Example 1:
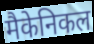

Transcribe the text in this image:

मैकेनिकल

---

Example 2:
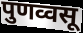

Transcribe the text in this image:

पुणव्वसू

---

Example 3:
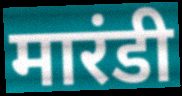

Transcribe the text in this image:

मारंडी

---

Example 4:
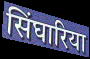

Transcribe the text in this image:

सिंघारिया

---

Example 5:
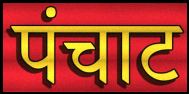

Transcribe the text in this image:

पंचाट